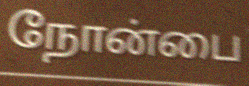
நோன்பை